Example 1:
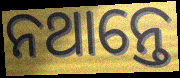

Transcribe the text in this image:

ନଥାନ୍ତେ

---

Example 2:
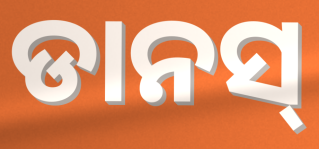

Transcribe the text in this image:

ଡାନସ୍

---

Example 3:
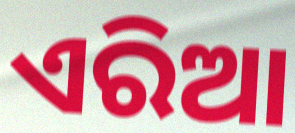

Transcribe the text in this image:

ଏରିଆ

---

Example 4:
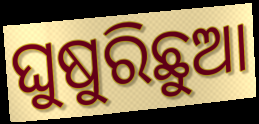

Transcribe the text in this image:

ଘୁଷୁରିଛୁଆ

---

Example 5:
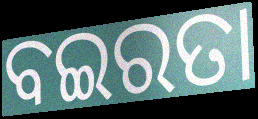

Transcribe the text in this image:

ବଇରତା